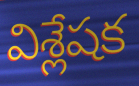
విశ్లేషక